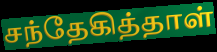
சந்தேகித்தாள்